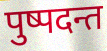
पुष्पदन्त